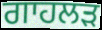
ਗਾਹਲੜ